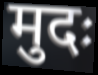
मुदः